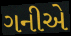
ગનીએ